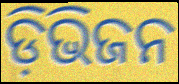
ଡ଼ିଭିଜନ